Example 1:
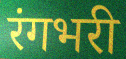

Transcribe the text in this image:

रंगभरी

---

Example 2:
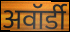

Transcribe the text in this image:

अवॉर्डी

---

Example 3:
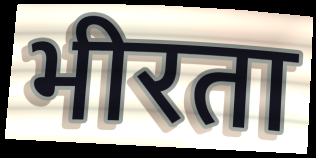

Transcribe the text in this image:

भीरता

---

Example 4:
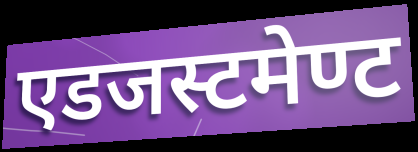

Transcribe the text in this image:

एडजस्टमेण्ट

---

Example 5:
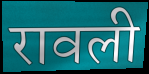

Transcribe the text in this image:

रावली